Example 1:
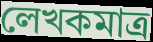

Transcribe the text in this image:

লেখকমাত্র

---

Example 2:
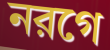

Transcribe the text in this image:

নরগে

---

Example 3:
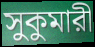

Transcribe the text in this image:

সুকুমারী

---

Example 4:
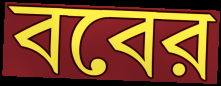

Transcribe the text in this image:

ববের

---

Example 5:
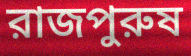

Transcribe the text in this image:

রাজপুরুষ